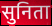
सुनिता